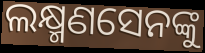
ଲକ୍ଷ୍ମଣସେନଙ୍କୁ